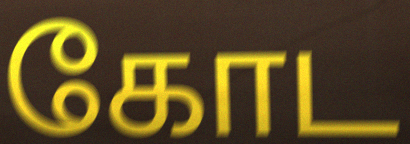
கோட